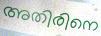
അതിരിനെ